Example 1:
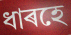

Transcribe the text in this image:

ধাৰহে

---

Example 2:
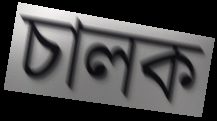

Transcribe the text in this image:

চালক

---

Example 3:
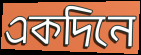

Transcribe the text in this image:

একদিনে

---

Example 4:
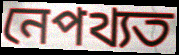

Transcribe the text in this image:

নেপথ্যত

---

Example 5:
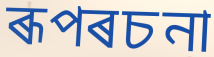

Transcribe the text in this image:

ৰূপৰচনা